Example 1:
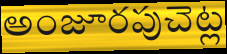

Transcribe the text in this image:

అంజూరపుచెట్ల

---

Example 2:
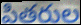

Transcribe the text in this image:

పితరుల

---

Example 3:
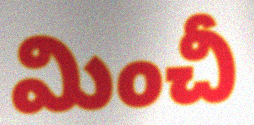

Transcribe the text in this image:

మించీ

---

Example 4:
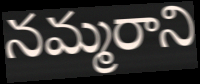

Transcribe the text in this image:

నమ్మరాని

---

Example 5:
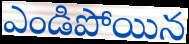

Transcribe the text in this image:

ఎండిపోయిన